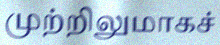
முற்றிலுமாகச்